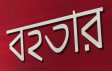
বহতার